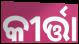
କୀର୍ତ୍ତା